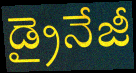
డ్రైనేజీ